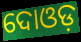
ଦୋଓଡ଼